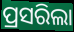
ପ୍ରସରିଲା